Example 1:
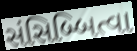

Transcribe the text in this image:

સંસિબ્બિત્વા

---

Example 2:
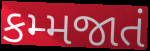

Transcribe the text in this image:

કમ્મજાતં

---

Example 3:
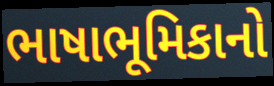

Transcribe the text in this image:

ભાષાભૂમિકાનો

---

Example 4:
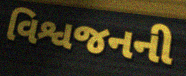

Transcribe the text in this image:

વિશ્વજનની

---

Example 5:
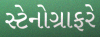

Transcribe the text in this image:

સ્ટેનોગ્રાફરે